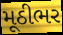
મૂઠીભર